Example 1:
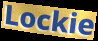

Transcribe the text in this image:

Lockie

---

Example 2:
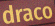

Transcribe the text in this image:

draco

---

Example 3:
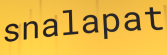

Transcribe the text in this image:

snalapat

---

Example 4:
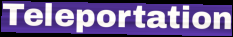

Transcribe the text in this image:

Teleportation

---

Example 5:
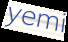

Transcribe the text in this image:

yemi